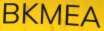
BKMEA